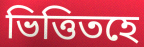
ভিত্তিতহে